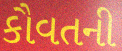
કૌવતની